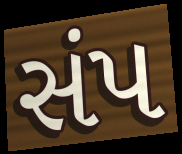
સંપ